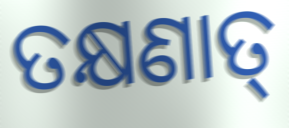
ତକ୍ଷଣାତ୍